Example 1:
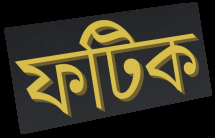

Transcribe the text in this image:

ফটিক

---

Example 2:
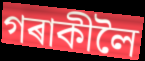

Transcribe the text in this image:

গৰাকীলৈ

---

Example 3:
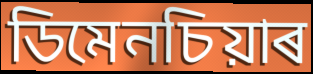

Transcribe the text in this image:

ডিমেনচিয়াৰ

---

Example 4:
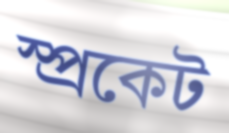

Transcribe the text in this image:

স্প্ৰকেট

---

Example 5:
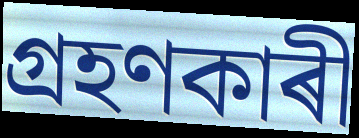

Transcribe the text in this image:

গ্ৰহণকাৰী